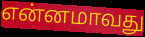
என்னமாவது